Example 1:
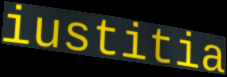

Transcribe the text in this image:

iustitia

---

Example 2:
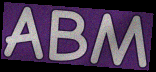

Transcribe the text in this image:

ABM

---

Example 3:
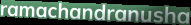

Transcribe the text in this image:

ramachandranusha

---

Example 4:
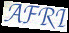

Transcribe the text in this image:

AFRI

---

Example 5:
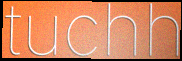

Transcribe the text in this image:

tuchh